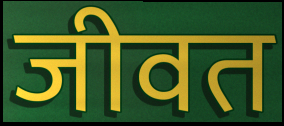
जीवत